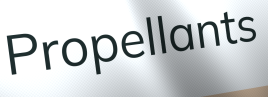
Propellants